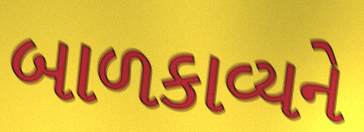
બાળકાવ્યને